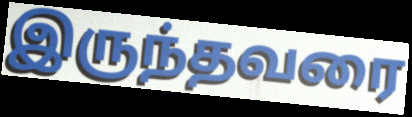
இருந்தவரை